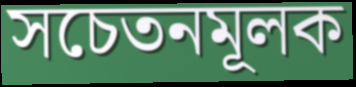
সচেতনমূলক